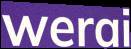
werai